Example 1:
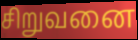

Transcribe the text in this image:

சிறுவனை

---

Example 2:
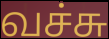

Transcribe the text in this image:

வச்சு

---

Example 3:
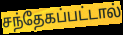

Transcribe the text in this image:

சந்தேகப்பட்டால்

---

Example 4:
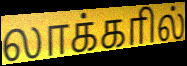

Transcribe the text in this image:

லாக்கரில்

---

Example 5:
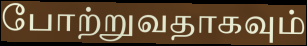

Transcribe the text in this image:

போற்றுவதாகவும்